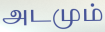
அடமும்